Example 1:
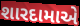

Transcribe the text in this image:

શારદામાએ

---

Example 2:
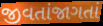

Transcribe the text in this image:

જીવતાંજાગતાં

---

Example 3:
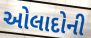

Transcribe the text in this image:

ઓલાદોની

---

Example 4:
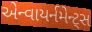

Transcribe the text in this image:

એન્વાયર્નમેન્ટ્સ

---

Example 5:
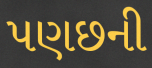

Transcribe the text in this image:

પણછની